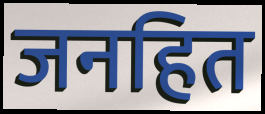
जनहित